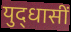
युद्धासीं